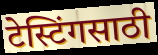
टेस्टिंगसाठी